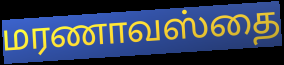
மரணாவஸ்தை